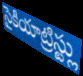
సైకియాట్రిస్ట్లు